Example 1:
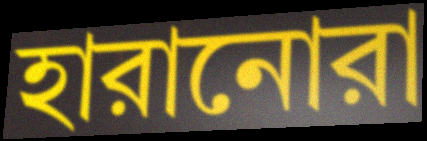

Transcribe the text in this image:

হারানোরা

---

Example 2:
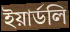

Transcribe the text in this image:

ইয়ার্ডলি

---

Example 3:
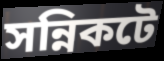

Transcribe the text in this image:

সন্নিকটে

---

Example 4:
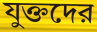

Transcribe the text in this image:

যুক্তদের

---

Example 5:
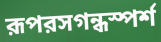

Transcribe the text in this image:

রূপরসগন্ধস্পর্শ